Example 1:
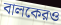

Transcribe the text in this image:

বালকেরও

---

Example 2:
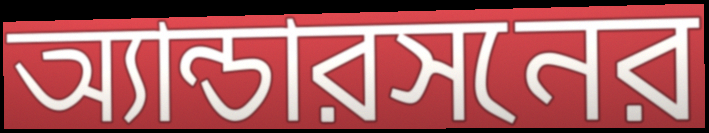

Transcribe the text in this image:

অ্যান্ডারসনের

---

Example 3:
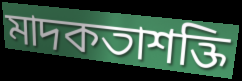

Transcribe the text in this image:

মাদকতাশক্তি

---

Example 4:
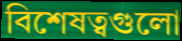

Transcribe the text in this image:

বিশেষত্বগুলো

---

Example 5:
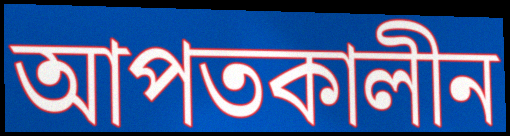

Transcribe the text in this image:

আপতকালীন